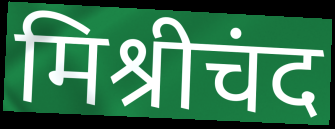
मिश्रीचंद